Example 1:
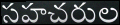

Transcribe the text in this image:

సహచరుల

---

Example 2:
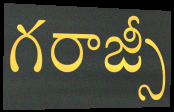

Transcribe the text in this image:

గరాజ్సీ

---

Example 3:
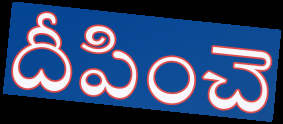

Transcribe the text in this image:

దీపించె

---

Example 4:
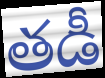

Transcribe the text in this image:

తడీ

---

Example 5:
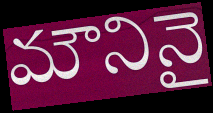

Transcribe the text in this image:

మౌనినై